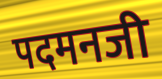
पदमनजी